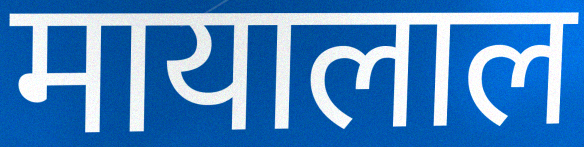
मायालाल